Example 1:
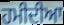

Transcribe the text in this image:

ਹਮੀਦੀਆ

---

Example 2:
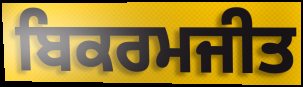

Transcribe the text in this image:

ਬਿਕਰਮਜੀਤ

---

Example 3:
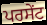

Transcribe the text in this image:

ਪਰਸੇੰਟ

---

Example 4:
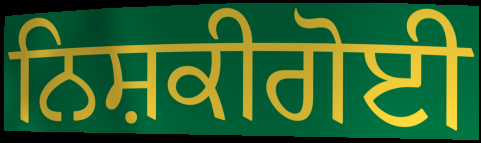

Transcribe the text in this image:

ਨਿਸ਼ਕੀਗੋਈ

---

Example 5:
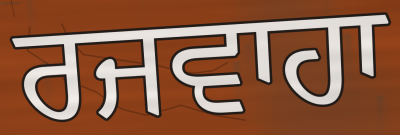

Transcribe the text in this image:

ਰਜਵਾਹਾ